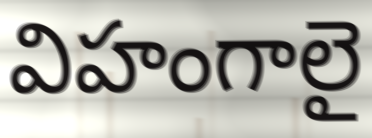
విహంగాలై